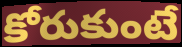
కోరుకుంటే